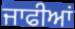
ਜਾਫੀਆਂ